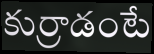
కుర్రాడంటే